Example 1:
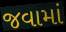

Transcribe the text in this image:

જવામાં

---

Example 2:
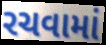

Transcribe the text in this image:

રચવામાં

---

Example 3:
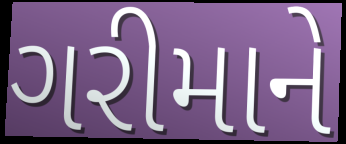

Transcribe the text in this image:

ગરીમાને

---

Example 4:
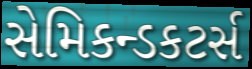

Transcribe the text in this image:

સેમિકન્ડકટર્સ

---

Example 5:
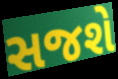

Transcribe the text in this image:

સજશે